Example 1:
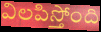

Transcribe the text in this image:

విలపిస్తోంది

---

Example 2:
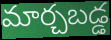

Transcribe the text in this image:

మార్చబడ్డ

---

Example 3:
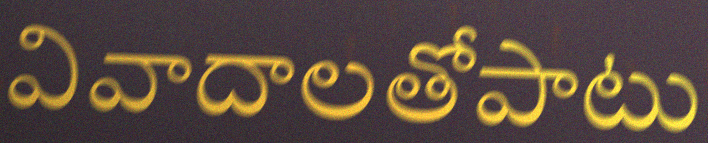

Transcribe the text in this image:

వివాదాలతోపాటు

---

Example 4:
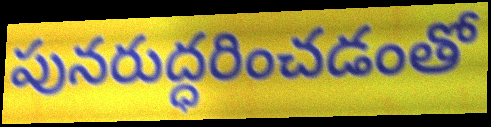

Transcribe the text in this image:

పునరుద్ధరించడంతో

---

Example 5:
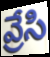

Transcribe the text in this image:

వ్రేసి